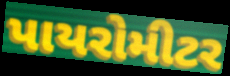
પાયરોમીટર